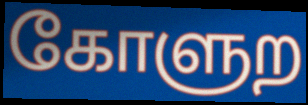
கோளுற